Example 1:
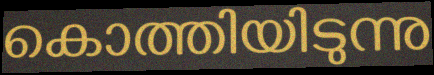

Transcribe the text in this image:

കൊത്തിയിടുന്നു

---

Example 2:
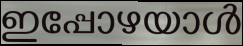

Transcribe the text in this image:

ഇപ്പോഴയാൾ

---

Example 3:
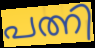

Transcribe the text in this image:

പത്നി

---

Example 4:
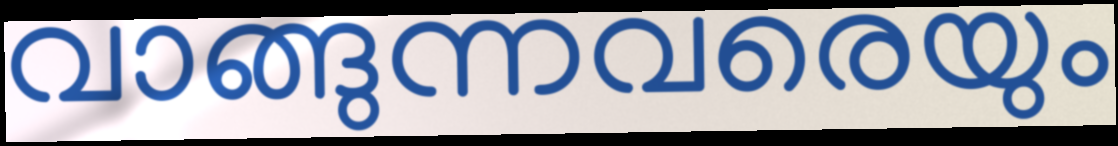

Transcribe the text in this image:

വാങ്ങുന്നവരെയും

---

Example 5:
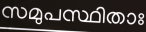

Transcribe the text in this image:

സമുപസ്ഥിതാഃ